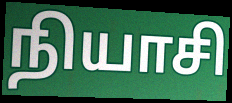
நியாசி